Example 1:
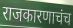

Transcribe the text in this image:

राजकारणाचंच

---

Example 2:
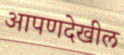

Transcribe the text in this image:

आपणदेखील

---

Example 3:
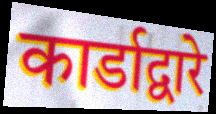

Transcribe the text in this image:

कार्डाद्वारे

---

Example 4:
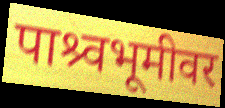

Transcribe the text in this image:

पाश्र्वभूमीवर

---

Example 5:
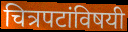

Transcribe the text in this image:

चित्रपटांविषयी